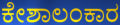
ಕೇಶಾಲಂಕಾರ